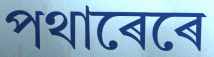
পথাৰেৰে